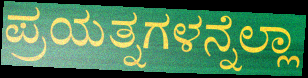
ಪ್ರಯತ್ನಗಳನ್ನೆಲ್ಲಾ